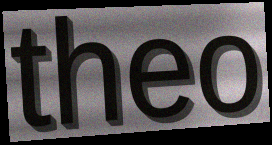
theo